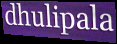
dhulipala